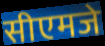
सीएमजे